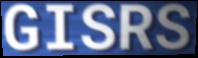
GISRS